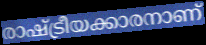
രാഷ്ട്രീയക്കാരനാണ്